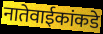
नातेवाईकांकडे